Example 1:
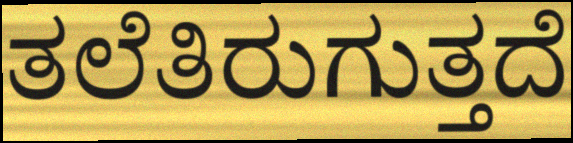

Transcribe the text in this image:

ತಲೆತಿರುಗುತ್ತದೆ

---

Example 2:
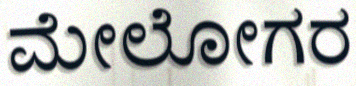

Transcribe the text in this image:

ಮೇಲೋಗರ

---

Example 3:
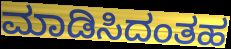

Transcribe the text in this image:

ಮಾಡಿಸಿದಂತಹ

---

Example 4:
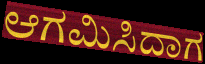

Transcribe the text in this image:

ಆಗಮಿಸಿದಾಗ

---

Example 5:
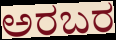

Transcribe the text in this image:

ಅರಬರ